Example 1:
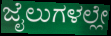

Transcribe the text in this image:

ಜೈಲುಗಳಲ್ಲೇ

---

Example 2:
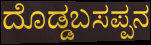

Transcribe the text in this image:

ದೊಡ್ಡಬಸಪ್ಪನ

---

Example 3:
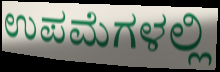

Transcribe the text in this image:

ಉಪಮೆಗಳಲ್ಲಿ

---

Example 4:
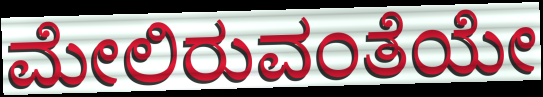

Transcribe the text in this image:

ಮೇಲಿರುವಂತೆಯೇ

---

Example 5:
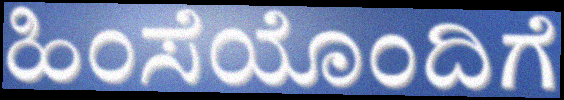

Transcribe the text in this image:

ಹಿಂಸೆಯೊಂದಿಗೆ